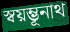
স্বয়ম্ভূনাথ